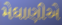
મેઘાણીએ